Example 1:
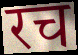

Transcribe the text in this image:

रच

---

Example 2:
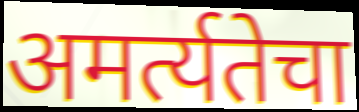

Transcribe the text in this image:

अमर्त्यतेचा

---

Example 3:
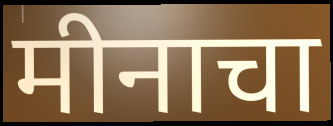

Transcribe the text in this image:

मीनाचा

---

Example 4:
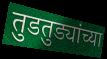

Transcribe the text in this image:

तुडतुड्यांच्या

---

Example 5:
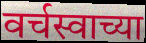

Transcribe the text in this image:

वर्चस्वाच्या